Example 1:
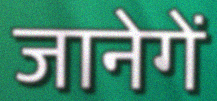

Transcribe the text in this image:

जानेगें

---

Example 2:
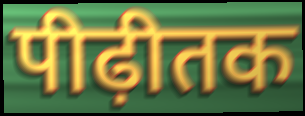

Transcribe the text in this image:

पीढ़ीतक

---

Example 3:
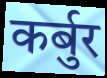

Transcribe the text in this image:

कर्बुर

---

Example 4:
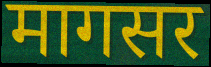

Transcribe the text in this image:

मागसर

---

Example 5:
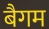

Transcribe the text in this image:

बैगम